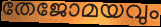
തേജോമയവും